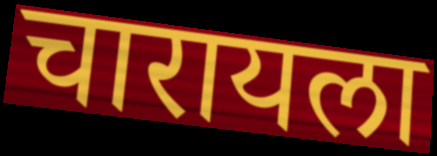
चारायला